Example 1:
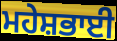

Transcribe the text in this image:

ਮਹੇਸ਼ਭਾਈ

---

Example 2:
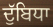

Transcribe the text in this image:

ਦੁੱਬਿਧਾ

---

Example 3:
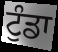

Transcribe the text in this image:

ਟੁੰਡਾ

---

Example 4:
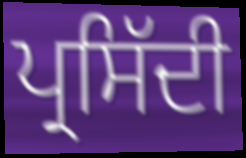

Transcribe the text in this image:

ਪ੍ਰਸਿੱਦੀ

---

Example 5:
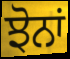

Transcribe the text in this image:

ਝੋਨਾਂ